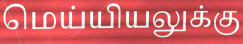
மெய்யியலுக்கு